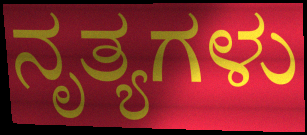
ನೃತ್ಯಗಳು